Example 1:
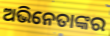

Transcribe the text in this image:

ଅଭିନେତାଙ୍କର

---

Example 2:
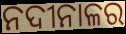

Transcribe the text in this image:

ନଦୀନାଳର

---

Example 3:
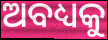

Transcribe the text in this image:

ଅବଧ୍ୟକୁ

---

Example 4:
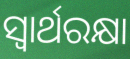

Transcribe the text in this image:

ସ୍ଵାର୍ଥରକ୍ଷା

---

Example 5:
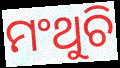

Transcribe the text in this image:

ମଂଥୁଚି